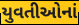
યુવતીઓનાં